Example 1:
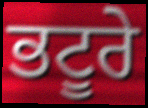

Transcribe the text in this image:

ਭਟੂਰੇ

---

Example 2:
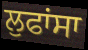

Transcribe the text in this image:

ਲੁਫਾਂਸਾ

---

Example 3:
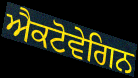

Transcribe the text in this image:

ਐਕਟੋਵੇਗਿਨ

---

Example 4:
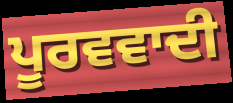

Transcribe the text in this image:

ਪੂਰਵਵਾਦੀ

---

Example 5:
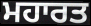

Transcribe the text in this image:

ਮਹਾਰਤ